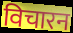
विचारन